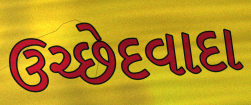
ઉચ્છેદવાદા